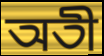
অতী